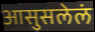
आसुसलेलं